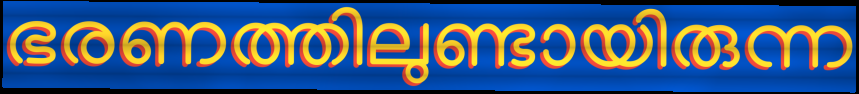
ഭരണത്തിലുണ്ടായിരുന്ന